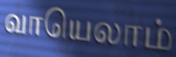
வாயெலாம்